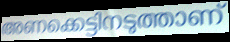
അണക്കെട്ടിനടുത്താണ്